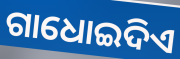
ଗାଧୋଇଦିଏ